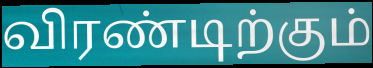
விரண்டிற்கும்